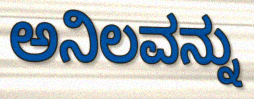
ಅನಿಲವನ್ನು